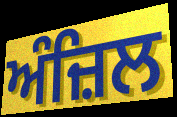
ਅੰਜ਼ਿਲ